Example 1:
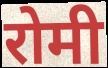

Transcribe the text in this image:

रोमी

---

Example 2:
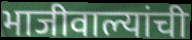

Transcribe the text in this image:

भाजीवाल्यांची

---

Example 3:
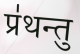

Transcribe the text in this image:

प्र॑थन्तु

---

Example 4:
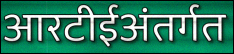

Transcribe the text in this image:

आरटीईअंतर्गत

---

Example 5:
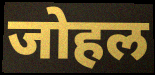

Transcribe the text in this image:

जोहल